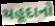
યહૂદાનો